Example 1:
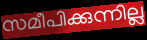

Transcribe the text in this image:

സമീപിക്കുന്നില്ല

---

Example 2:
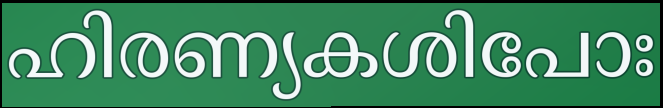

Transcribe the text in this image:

ഹിരണ്യകശിപോഃ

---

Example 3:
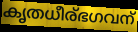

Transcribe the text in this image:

കൃതധീര്ഭഗവന്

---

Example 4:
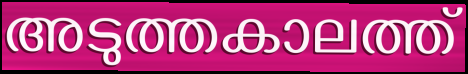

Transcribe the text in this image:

അടുത്തകാലത്ത്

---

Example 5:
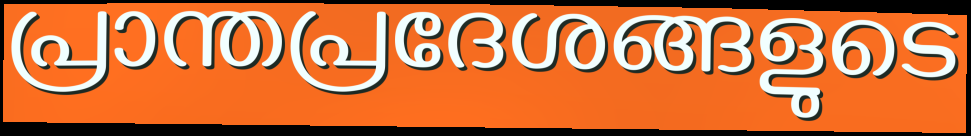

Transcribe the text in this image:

പ്രാന്തപ്രദേശങ്ങളുടെ